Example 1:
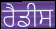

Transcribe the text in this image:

ਰੈਡੀਸ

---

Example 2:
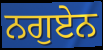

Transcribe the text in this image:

ਨਗੁਏਨ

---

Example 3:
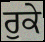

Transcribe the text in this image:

ਰੁਕੇ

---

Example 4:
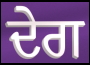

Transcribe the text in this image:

ਦੇਗ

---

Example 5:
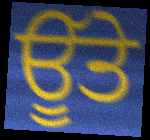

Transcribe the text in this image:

ਊੱਤੇ